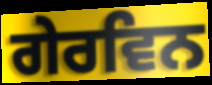
ਗੇਰਵਿਨ